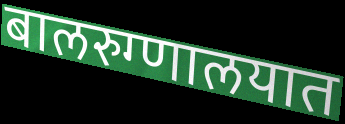
बालरुग्णालयात